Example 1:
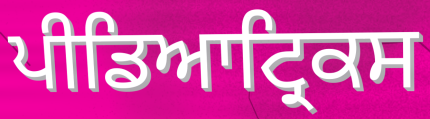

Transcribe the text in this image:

ਪੀਡਿਆਟ੍ਰਿਕਸ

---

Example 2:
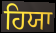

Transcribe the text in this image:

ਹਿਯਾ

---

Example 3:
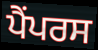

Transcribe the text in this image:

ਪੈਂਪਰਸ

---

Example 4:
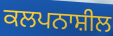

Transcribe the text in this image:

ਕਲਪਨਾਸ਼ੀਲ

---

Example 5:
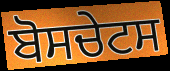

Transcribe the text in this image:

ਬੋਸਚੇਟਸ